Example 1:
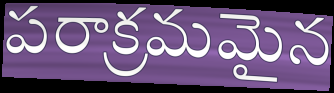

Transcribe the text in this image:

పరాక్రమమైన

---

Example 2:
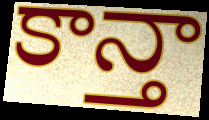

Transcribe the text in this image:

కాన్తా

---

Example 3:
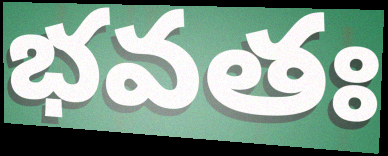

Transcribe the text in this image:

భవతః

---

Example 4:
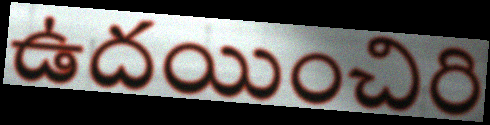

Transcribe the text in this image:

ఉదయించిరి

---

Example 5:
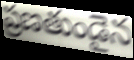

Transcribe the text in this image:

ప్రణతుండైన